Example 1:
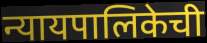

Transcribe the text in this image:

न्यायपालिकेची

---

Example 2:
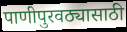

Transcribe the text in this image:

पाणीपुरवठ्यासाठी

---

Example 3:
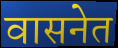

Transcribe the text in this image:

वासनेत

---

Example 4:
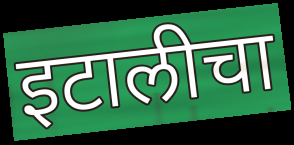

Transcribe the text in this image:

इटालीचा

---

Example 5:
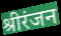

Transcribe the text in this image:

श्रीरंजन